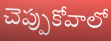
చెప్పుకోవాలో